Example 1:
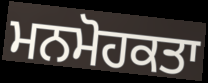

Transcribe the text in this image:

ਮਨਮੋਹਕਤਾ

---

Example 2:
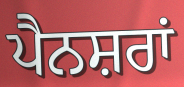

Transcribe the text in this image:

ਪੈਨਸ਼ਰਾਂ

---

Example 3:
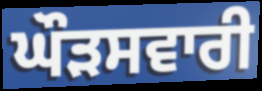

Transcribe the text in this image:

ਘੌੜਸਵਾਰੀ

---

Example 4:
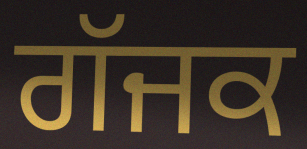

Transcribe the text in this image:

ਗੱਜਕ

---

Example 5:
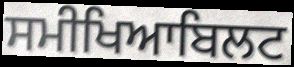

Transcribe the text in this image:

ਸਮੀਖਿਆਬਿਲਟ